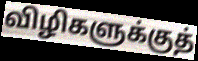
விழிகளுக்குத்